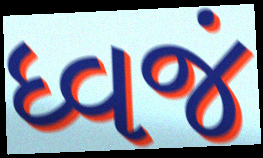
ધ્વજં